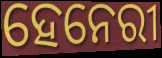
ହେନେରୀ